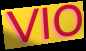
VIO